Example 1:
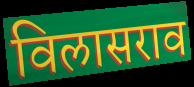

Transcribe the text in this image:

विलासराव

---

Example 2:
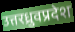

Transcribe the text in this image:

उत्तरध्रुवप्रदेश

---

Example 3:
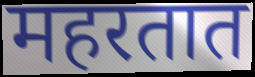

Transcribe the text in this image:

महरतात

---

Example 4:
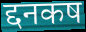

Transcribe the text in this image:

द्दनकष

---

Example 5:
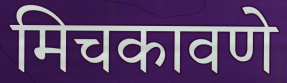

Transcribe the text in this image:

मिचकावणे